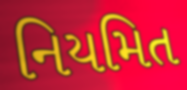
નિયમિત